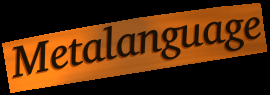
Metalanguage